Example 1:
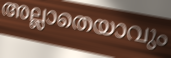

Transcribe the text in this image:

അല്ലാതെയാവും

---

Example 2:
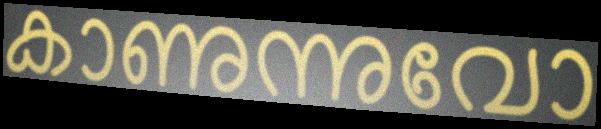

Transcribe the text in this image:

കാണുന്നുവോ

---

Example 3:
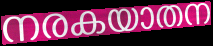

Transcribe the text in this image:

നരകയാതന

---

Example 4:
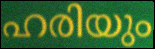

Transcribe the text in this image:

ഹരിയും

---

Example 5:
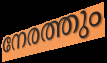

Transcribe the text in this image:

നേരത്തും